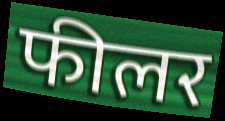
फीलर